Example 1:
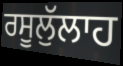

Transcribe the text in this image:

ਰਸੂਲੁੱਲਾਹ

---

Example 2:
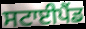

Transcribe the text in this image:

ਸਟਾਈਪੈਂਡ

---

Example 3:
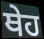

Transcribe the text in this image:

ਥੇਹ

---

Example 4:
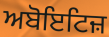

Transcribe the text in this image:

ਅਬੋਇਟਿਜ਼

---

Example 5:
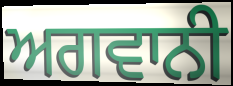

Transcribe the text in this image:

ਅਗਵਾਨੀ